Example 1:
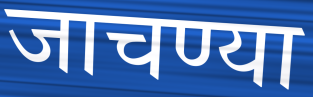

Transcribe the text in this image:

जाचण्या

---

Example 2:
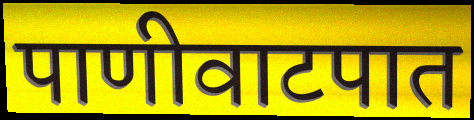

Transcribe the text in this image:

पाणीवाटपात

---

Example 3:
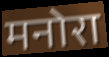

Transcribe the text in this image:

मनोरा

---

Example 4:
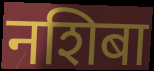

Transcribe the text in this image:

नशिबा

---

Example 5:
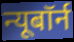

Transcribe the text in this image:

न्यूबॉर्न